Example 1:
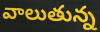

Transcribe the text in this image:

వాలుతున్న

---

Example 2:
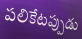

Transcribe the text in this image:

పలికేటప్పుడు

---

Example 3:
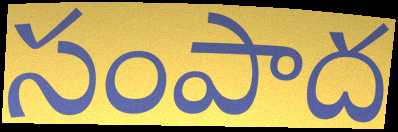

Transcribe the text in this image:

సంపాద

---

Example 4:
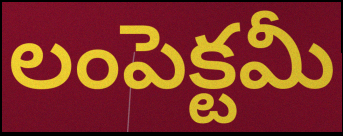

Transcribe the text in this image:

లంపెక్టమీ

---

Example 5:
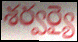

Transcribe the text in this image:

శర్వర్యై